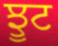
ਝੂਟ